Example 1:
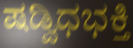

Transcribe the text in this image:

ಷಡ್ವಿಧಭಕ್ತಿ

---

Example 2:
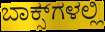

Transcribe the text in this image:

ಬಾಕ್ಸ್‌ಗಳಲ್ಲಿ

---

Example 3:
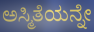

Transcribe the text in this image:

ಅಸ್ಮಿತೆಯನ್ನೇ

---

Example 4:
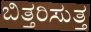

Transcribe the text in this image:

ಬಿತ್ತರಿಸುತ್ತ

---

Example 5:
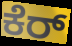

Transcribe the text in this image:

ಕೆರ್